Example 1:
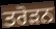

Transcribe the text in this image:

ਤਰੋੜਨ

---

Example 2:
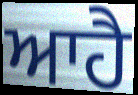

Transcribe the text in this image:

ਆਹੈ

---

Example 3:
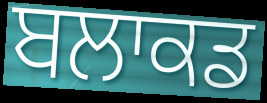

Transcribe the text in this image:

ਬਲਾਕਡ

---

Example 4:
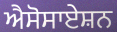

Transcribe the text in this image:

ਐਸੋਸਾਏਸ਼ਨ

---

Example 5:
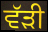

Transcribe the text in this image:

ਵੱੜੀ